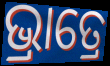
ଭ୍ରାତ୍ରେ